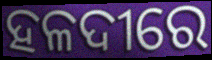
ହଳଦୀରେ